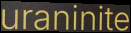
uraninite